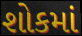
શોકમાં